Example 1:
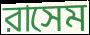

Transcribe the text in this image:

রাসেম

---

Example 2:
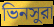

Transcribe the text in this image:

ভিনসুরা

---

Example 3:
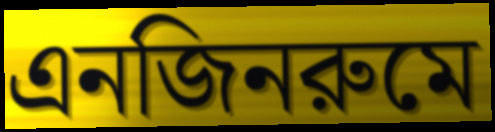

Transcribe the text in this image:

এনজিনরুমে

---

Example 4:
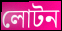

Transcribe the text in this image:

লোটন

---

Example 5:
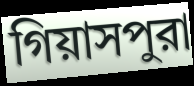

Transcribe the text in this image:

গিয়াসপুরা